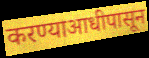
करण्याआधीपासून